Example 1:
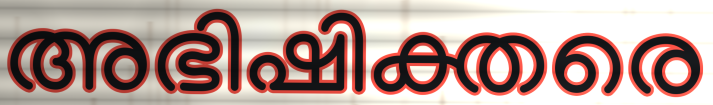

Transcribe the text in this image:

അഭിഷിക്തരെ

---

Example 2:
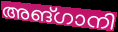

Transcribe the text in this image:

അങ്ഗാനി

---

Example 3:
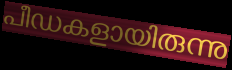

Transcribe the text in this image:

പീഡകളായിരുന്നു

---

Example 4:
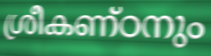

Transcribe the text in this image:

ശ്രീകണ്ഠനും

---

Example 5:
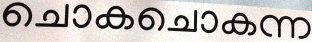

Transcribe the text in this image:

ചൊകചൊകന്ന